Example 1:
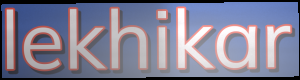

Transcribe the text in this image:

lekhikar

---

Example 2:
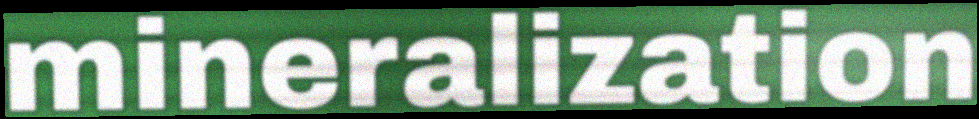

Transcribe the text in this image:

mineralization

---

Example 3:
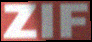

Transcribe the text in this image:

ZIF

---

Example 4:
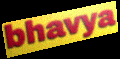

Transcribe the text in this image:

bhavya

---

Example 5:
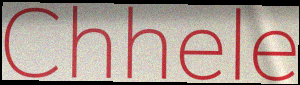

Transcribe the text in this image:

Chhele